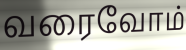
வரைவோம்